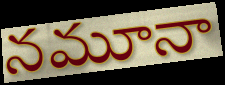
నమూనా